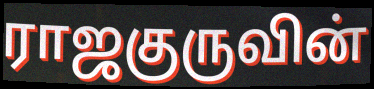
ராஜகுருவின்